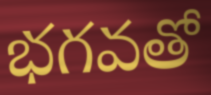
భగవతో